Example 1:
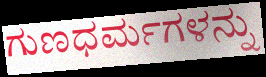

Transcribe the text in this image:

ಗುಣಧರ್ಮಗಳನ್ನು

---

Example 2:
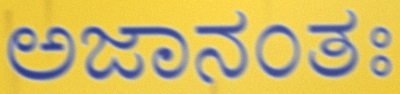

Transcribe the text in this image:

ಅಜಾನಂತಃ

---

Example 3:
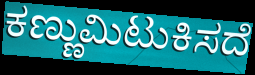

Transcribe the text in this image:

ಕಣ್ಣುಮಿಟುಕಿಸದೆ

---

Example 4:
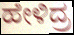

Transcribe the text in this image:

ಹೇಳಿದ್ರ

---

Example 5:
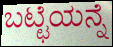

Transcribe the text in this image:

ಬಟ್ಟೆಯನ್ನೆ